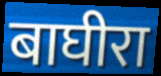
बाघीरा